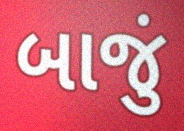
બાજું